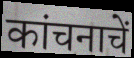
कांचनाचें